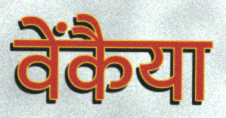
वेंकैया